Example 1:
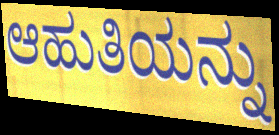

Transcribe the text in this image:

ಆಹುತಿಯನ್ನು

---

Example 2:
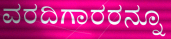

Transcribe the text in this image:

ವರದಿಗಾರರನ್ನೂ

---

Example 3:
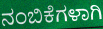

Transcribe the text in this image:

ನಂಬಿಕೆಗಳಾಗಿ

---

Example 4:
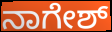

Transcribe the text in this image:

ನಾಗೇಶ್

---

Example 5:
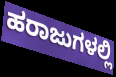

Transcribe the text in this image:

ಹರಾಜುಗಳಲ್ಲಿ